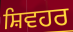
ਸ਼ਿਵਹਰ